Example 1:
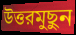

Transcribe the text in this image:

উত্তরমুছুন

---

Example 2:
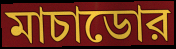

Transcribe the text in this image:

মাচাডোর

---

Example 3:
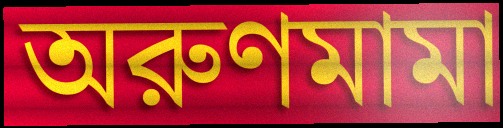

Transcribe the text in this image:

অরুণমামা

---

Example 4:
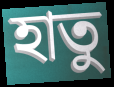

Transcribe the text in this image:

হাতু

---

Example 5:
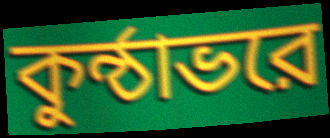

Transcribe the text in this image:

কুন্ঠাভরে